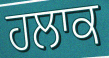
ਹਲਾਕ